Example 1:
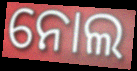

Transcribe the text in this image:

ନୋଲ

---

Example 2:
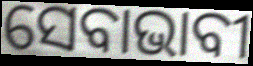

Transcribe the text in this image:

ସେବାଭାବୀ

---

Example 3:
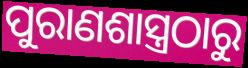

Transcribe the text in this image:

ପୁରାଣଶାସ୍ତ୍ରଠାରୁ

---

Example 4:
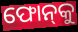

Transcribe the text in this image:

ଫୋନ୍‌କୁ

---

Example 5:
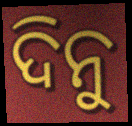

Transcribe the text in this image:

ଦିନୁ